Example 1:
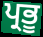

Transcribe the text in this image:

ਪ੍ਰਭੂ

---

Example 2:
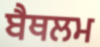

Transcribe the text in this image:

ਬੈਥਲਮ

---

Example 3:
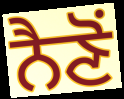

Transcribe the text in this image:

ਨੈਣੋਂ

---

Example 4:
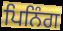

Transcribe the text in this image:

ਪਿਨਿੰਗ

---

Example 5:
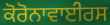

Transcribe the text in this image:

ਕੋਰੋਨਾਵਾਈਰਸ